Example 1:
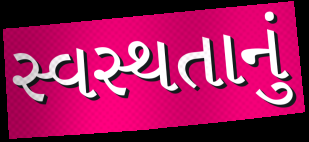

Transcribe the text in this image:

સ્વસ્થતાનું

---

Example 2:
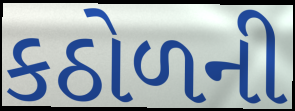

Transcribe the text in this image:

કઠોળની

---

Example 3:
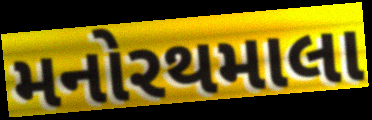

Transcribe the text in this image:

મનોરથમાલા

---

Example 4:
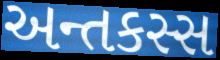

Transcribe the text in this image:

અન્તકસ્સ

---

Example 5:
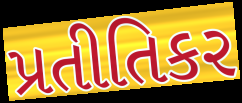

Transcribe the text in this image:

પ્રતીતિકર